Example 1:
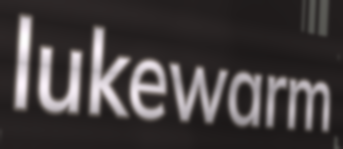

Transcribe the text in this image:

lukewarm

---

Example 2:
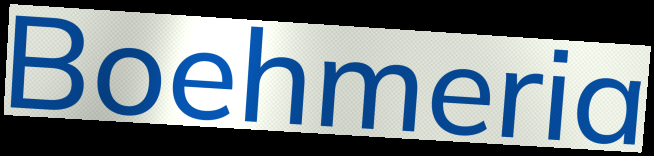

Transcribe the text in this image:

Boehmeria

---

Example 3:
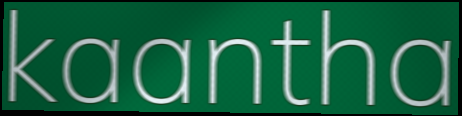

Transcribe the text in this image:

kaantha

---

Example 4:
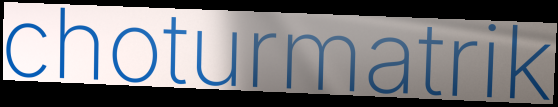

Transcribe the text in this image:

choturmatrik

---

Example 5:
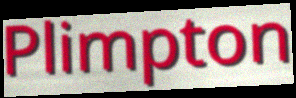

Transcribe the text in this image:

Plimpton